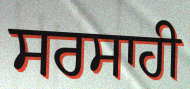
ਸਰਸਾਹੀ